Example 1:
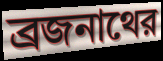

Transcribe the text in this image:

ব্রজনাথের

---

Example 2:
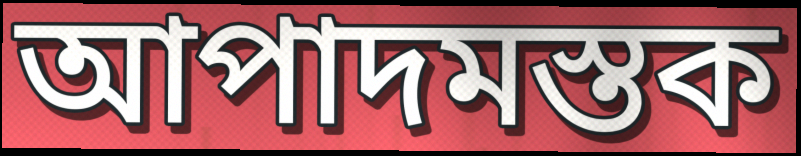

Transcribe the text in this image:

আপাদমস্তক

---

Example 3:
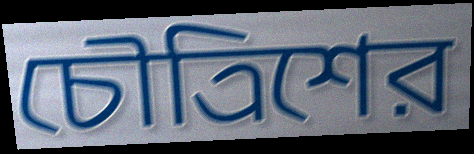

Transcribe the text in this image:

চৌত্রিশের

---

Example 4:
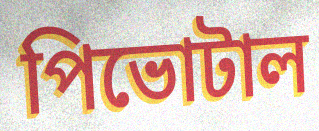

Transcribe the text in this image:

পিভোটাল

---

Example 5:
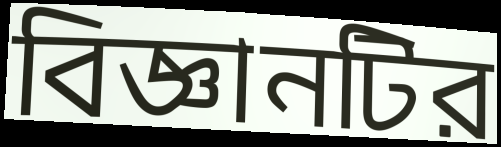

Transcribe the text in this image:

বিজ্ঞানটির